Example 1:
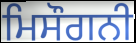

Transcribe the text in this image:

ਮਿਸੌਗਨੀ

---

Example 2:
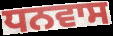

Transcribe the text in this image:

ਧਨਵਾਸ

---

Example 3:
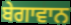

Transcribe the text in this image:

ਬੇਗਾਵਾਨ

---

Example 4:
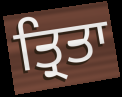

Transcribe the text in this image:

ਤ੍ਰਿਤਾ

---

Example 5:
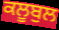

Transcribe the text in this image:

ਕਲੂਬੁਲ